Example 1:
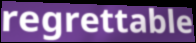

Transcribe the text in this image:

regrettable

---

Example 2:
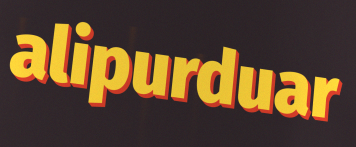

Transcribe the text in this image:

alipurduar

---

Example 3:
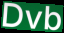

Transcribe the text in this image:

Dvb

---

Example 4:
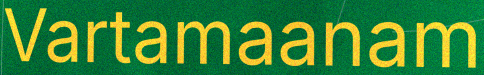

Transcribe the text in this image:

Vartamaanam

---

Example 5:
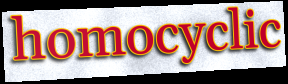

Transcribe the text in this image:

homocyclic